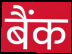
बैंक